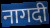
नागदी